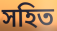
সহিত